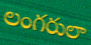
లంగరులా